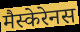
मैस्केरेनस